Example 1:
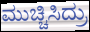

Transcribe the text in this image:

ಮುಚ್ಚಿಸಿದ್ರು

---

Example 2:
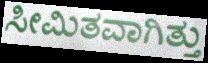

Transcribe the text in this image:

ಸೀಮಿತವಾಗಿತ್ತು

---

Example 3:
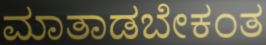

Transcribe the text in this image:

ಮಾತಾಡಬೇಕಂತ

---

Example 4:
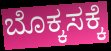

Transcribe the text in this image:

ಬೊಕ್ಕಸಕ್ಕೆ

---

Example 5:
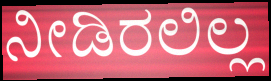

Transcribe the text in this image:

ನೀಡಿರಲಿಲ್ಲ